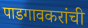
पाडगावकरांची